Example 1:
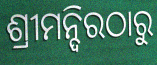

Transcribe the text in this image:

ଶ୍ରୀମନ୍ଦିରଠାରୁ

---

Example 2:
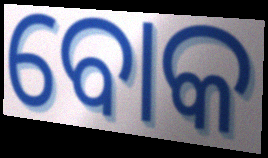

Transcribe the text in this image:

ବୋକ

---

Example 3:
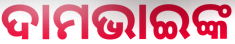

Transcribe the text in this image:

ଦାମଭାଇଙ୍କ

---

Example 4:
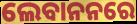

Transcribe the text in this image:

ଲେବାନନରେ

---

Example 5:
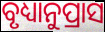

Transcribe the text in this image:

ବୃଧ୍ୟାନୁପ୍ରାସ